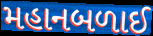
મહાનબળાઈ